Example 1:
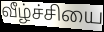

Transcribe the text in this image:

வீழ்ச்சியை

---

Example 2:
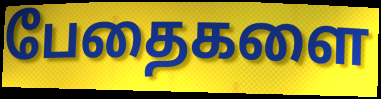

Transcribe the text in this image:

பேதைகளை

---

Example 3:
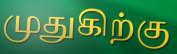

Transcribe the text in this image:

முதுகிற்கு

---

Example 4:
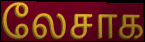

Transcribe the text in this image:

லேசாக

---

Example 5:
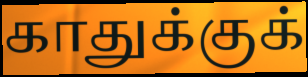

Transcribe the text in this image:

காதுக்குக்